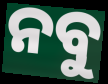
ନବୁ